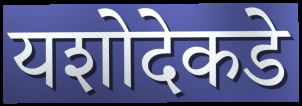
यशोदेकडे